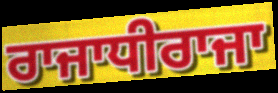
ਰਾਜਾਧੀਰਾਜਾ